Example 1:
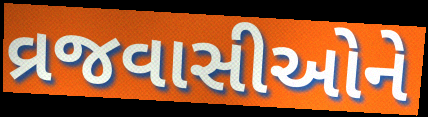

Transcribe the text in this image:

વ્રજવાસીઓને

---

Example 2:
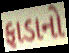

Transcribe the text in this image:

ફાડાનો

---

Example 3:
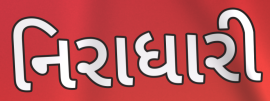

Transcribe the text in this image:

નિરાધારી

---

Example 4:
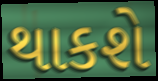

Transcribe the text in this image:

થાકશે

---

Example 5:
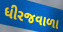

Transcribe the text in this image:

ધીરજવાળા